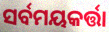
ସର୍ବମୟକର୍ତ୍ତା